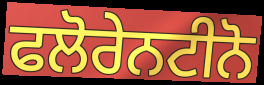
ਫਲੋਰੇਨਟੀਨੋ